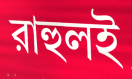
রাহুলই